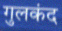
गुलकंद